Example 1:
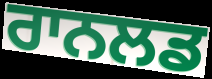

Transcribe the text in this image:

ਰਾਨਲਡ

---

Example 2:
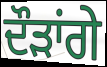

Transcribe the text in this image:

ਦੌੜਾਂਗੇ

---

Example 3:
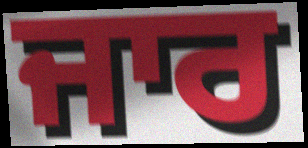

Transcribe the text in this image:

ਜਾਰ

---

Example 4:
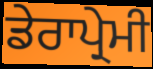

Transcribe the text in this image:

ਡੇਰਾਪ੍ਰੇਮੀ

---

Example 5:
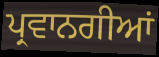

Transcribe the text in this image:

ਪ੍ਰਵਾਨਗੀਆਂ